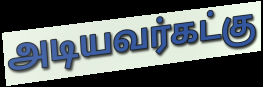
அடியவர்கட்கு